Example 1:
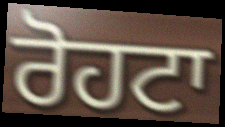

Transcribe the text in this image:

ਰੋਹਟਾ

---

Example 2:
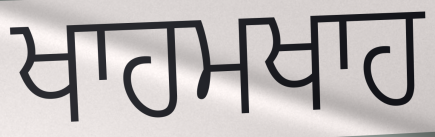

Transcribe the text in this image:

ਖਾਹਮਖਾਹ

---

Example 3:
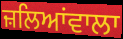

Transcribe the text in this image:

ਜ਼ਲਿਆਂਵਾਲਾ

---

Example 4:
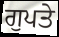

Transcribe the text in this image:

ਗੁਪਤੇ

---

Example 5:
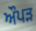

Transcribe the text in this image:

ਔਪੜ